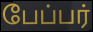
பேப்பர்